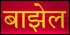
बाझेल